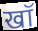
खॉ